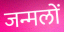
जन्मलों